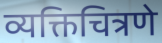
व्यक्तिचित्रणे